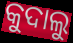
କୁଦାଲୁ